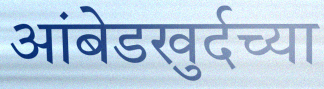
आंबेडखुर्दच्या